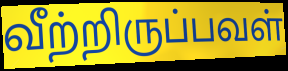
வீற்றிருப்பவள்